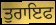
ਤੁਰਾਇਫ